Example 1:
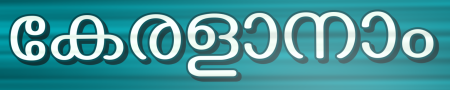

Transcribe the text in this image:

കേരളാനാം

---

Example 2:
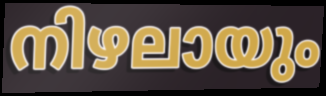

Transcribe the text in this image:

നിഴലായും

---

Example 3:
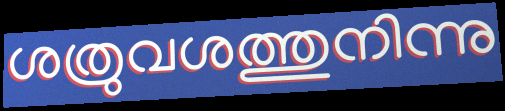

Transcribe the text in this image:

ശത്രുവശത്തുനിന്നു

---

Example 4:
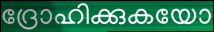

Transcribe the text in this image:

ദ്രോഹിക്കുകയോ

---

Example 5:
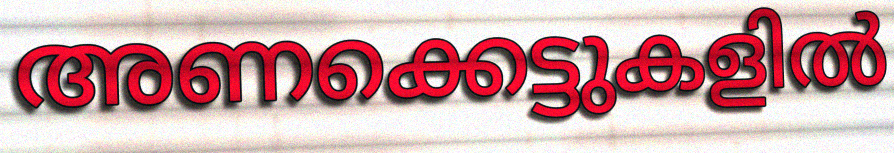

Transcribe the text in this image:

അണക്കെട്ടുകളിൽ